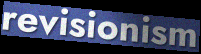
revisionism